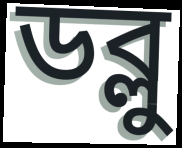
ডব্লু